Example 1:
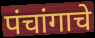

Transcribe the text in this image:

पंचांगाचे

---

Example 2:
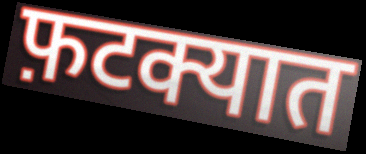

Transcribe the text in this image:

फ़टक्यात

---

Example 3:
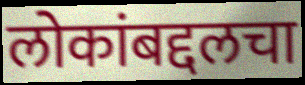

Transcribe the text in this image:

लोकांबद्दलचा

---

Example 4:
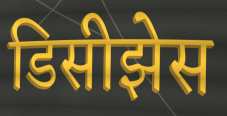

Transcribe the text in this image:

डिसीझेस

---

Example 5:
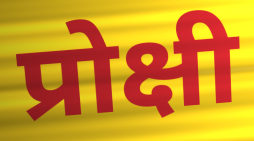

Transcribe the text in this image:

प्रोक्षी